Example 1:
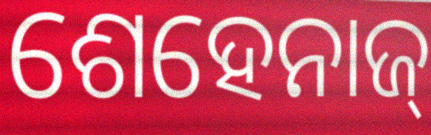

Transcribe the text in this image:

ଶେହେନାଜ୍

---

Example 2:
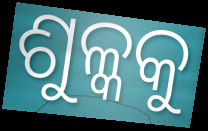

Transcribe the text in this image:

ଶୁଳ୍କକୁ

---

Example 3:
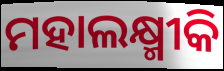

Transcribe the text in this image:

ମହାଲକ୍ଷ୍ମୀକି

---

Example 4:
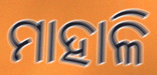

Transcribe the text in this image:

ମାହାଳି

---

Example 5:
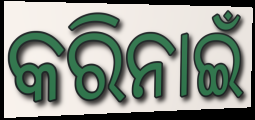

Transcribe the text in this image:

କରିନାଇଁ